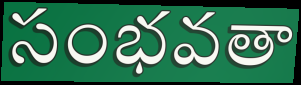
సంభవతా